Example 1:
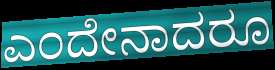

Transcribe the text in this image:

ಎಂದೇನಾದರೂ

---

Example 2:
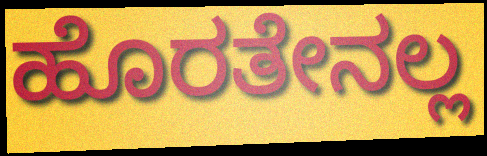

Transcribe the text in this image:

ಹೊರತೇನಲ್ಲ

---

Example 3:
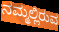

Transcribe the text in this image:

ನಮ್ಮಲ್ಲಿರುವ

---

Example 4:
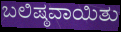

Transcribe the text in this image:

ಬಲಿಷ್ಠವಾಯಿತು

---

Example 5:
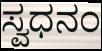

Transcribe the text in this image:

ಸ್ವಧನಂ